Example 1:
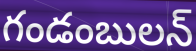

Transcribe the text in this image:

గండంబులన్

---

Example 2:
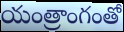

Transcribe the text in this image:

యంత్రాంగంతో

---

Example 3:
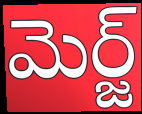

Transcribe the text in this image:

మెర్జ్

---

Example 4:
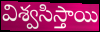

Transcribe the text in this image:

విశ్వసిస్తాయి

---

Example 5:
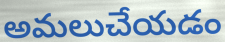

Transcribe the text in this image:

అమలుచేయడం